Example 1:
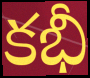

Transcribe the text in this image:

కభీ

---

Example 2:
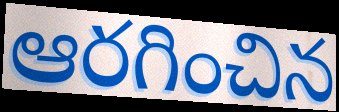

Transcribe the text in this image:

ఆరగించిన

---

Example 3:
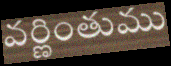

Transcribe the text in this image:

వర్ణింతుము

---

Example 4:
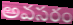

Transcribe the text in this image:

అవసరం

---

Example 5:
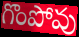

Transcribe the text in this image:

గొంపోవు